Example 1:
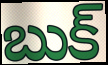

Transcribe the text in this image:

బుక్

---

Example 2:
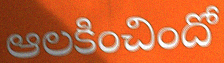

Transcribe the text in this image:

ఆలకించిందో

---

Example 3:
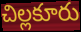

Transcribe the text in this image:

చిల్లకూరు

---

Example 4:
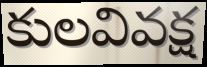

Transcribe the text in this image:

కులవివక్ష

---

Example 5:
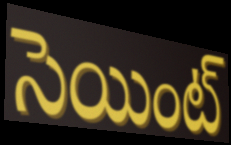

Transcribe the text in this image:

సెయింట్